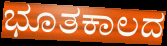
ಭೂತಕಾಲದ